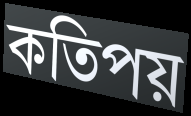
কতিপয়